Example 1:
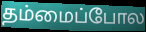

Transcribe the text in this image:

தம்மைப்போல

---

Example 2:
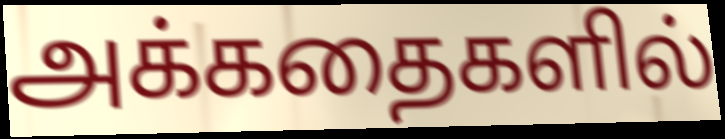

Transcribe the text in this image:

அக்கதைகளில்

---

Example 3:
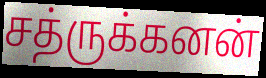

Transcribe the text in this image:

சத்ருக்கனன்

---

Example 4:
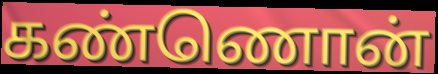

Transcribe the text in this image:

கண்ணொன்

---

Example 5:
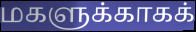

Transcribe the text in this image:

மகளுக்காகக்